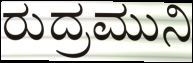
ರುದ್ರಮುನಿ